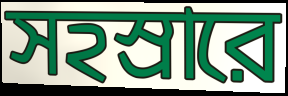
সহস্রারে